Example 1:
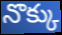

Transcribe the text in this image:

నొక్కు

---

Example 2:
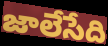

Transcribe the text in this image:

జాలేసేది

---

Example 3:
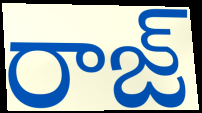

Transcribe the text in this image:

రాజ్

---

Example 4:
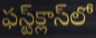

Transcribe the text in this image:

ఫస్ట్‌క్లాస్‌లో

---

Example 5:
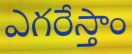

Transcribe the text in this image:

ఎగరేస్తాం